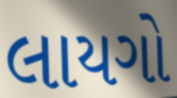
લાયગો